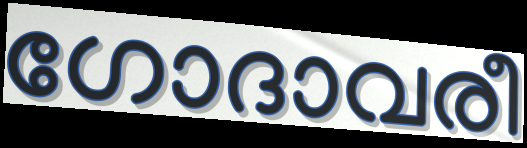
ഗോദാവരീ